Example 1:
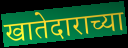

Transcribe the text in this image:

खातेदाराच्या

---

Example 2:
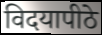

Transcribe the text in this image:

विदयापीठे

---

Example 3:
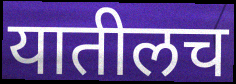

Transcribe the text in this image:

यातीलच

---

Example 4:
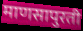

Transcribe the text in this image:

माणसापुरती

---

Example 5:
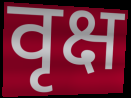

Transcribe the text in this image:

वृक्ष